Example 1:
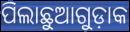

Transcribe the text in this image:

ପିଲାଛୁଆଗୁଡ଼ାକ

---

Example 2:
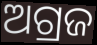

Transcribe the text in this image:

ଅଗ୍ରଜ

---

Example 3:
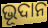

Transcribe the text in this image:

ଭୂଦାନ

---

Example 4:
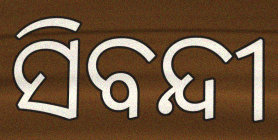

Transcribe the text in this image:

ସିବନ୍ଦୀ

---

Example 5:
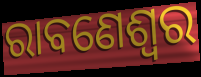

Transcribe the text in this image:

ରାବଣେଶ୍ୱର